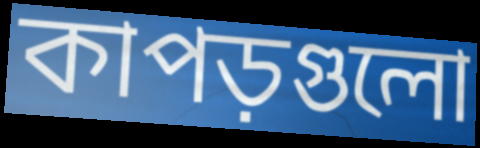
কাপড়গুলো